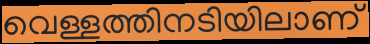
വെള്ളത്തിനടിയിലാണ്